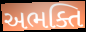
અભક્તિ